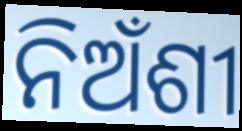
ନିଅଁଶୀ